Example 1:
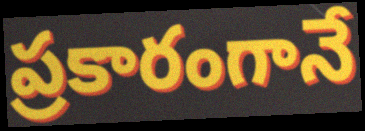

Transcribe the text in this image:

ప్రకారంగానే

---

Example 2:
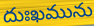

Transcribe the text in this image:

దుఃఖమును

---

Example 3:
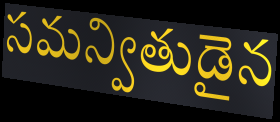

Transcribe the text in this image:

సమన్వితుడైన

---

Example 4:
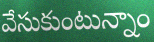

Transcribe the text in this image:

వేసుకుంటున్నాం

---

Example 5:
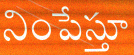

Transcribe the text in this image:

నింపేస్తూ